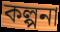
কল্পনা